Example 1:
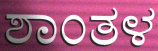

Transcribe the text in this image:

ಶಾಂತಳ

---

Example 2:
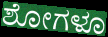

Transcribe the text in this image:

ಶೋಗಳೂ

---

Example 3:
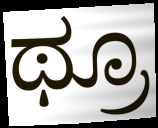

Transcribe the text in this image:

ಥ್ರೂ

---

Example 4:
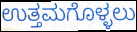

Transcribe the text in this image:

ಉತ್ತಮಗೊಳ್ಳಲು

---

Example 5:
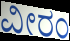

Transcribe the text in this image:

ವೀರಂ